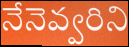
నేనెవ్వరిని